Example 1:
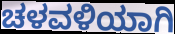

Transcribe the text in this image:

ಚಳವಳಿಯಾಗಿ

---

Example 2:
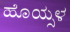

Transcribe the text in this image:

ಹೊಯ್ಸಳ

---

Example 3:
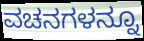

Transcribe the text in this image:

ವಚನಗಳನ್ನೂ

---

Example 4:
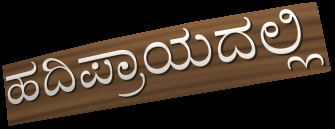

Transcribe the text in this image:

ಹದಿಪ್ರಾಯದಲ್ಲಿ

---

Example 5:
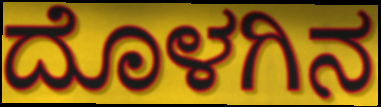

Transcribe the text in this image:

ದೊಳಗಿನ